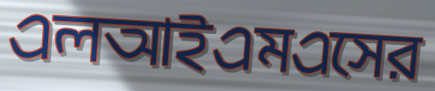
এলআইএমএসের